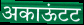
अकाऊंटट